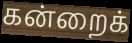
கன்றைக்